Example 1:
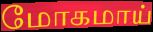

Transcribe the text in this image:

மோகமாய்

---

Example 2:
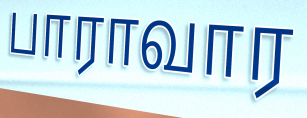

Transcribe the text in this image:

பாராவார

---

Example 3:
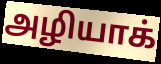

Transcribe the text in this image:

அழியாக்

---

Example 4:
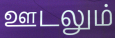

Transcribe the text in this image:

ஊடலும்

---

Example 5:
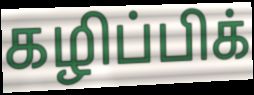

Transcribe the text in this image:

கழிப்பிக்